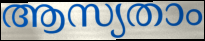
ആസ്യതാം